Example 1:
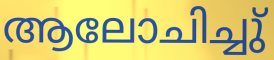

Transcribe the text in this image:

ആലോചിച്ചു്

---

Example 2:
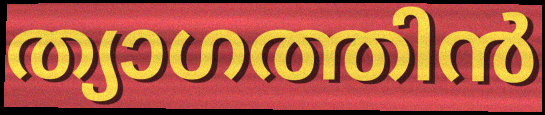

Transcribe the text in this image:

ത്യാഗത്തിൻ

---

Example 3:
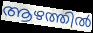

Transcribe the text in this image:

ആഴത്തിൽ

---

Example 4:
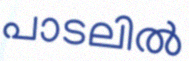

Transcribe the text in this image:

പാടലിൽ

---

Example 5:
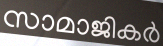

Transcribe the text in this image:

സാമാജികർ